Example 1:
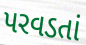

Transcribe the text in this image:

પરવડતાં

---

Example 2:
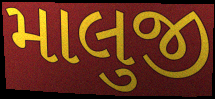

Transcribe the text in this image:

માલુજી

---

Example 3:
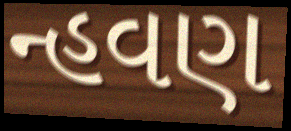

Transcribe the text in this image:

ન્હવણ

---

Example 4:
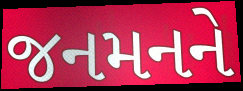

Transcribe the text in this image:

જનમનને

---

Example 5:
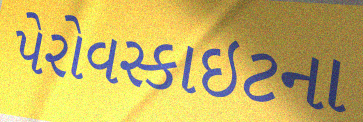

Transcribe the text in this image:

પેરોવસ્કાઇટના